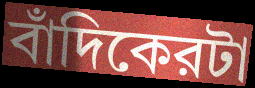
বাঁদিকেরটা